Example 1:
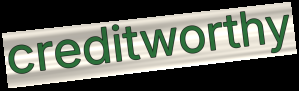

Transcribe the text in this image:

creditworthy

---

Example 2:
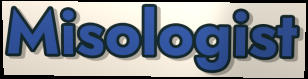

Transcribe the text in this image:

Misologist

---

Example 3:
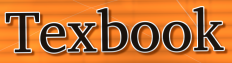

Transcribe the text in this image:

Texbook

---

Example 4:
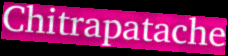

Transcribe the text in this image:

Chitrapatache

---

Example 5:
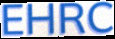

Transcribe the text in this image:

EHRC